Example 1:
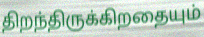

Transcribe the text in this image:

திறந்திருக்கிறதையும்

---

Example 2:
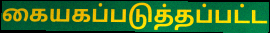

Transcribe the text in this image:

கையகப்படுத்தப்பட்ட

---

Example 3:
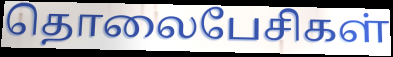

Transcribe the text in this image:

தொலைபேசிகள்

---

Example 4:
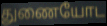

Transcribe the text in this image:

துணையோட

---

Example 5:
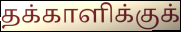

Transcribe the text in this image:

தக்காளிக்குக்